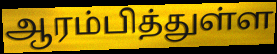
ஆரம்பித்துள்ள